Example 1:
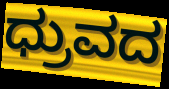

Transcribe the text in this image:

ಧ್ರುವದ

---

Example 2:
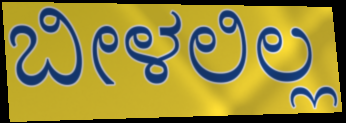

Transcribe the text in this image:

ಬೀಳಲಿಲ್ಲ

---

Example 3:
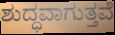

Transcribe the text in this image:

ಶುದ್ಧವಾಗುತ್ತವೆ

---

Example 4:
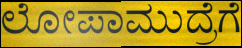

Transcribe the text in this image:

ಲೋಪಾಮುದ್ರೆಗೆ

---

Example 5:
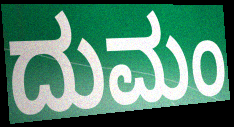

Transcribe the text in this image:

ದುಮಂ